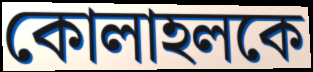
কোলাহলকে